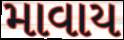
માવાય